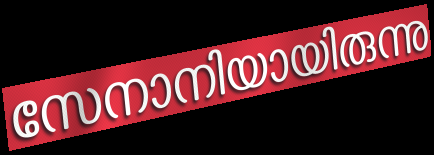
സേനാനിയായിരുന്നു